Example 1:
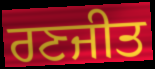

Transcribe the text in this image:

ਰਣਜੀਤ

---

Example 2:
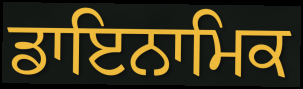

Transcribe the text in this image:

ਡਾਇਨਾਮਿਕ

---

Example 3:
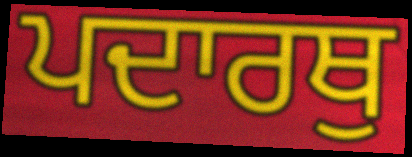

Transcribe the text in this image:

ਪਦਾਰਥੁ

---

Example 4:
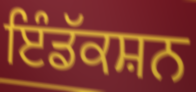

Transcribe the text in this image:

ਇੰਡੱਕਸ਼ਨ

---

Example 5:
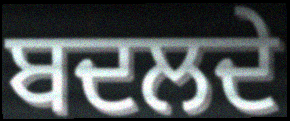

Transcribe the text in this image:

ਬਦਲਦੇ